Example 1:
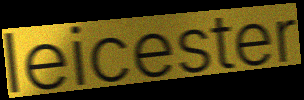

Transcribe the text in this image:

leicester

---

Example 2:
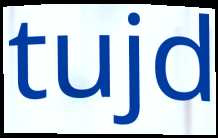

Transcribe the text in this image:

tujd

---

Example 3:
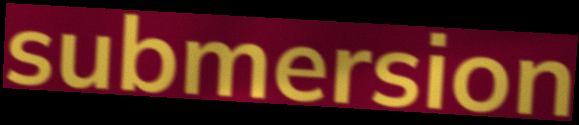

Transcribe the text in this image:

submersion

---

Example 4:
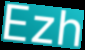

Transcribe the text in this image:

Ezh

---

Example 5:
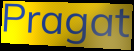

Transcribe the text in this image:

Pragat